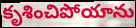
కృశించిపోయాను